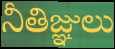
నీతిజ్ఞులు